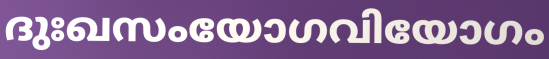
ദുഃഖസംയോഗവിയോഗം